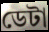
ডেটা